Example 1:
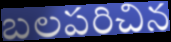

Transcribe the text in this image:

బలపరిచిన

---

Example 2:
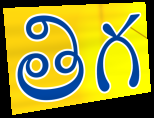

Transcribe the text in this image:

తిగ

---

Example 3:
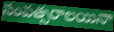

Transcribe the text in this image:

సంవత్సరాలయినా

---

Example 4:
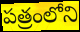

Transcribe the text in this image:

పత్రంలోని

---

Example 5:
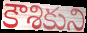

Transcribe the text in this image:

కౌశికుని